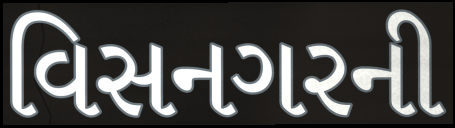
વિસનગરની